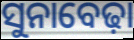
ସୁନାବେଢ଼ା